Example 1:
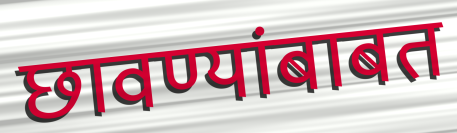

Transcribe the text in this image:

छावण्यांबाबत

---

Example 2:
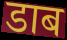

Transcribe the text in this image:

डाब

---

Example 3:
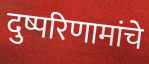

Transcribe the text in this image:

दुष्परिणामांचे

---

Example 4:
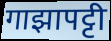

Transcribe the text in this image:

गाझापट्टी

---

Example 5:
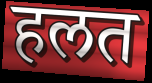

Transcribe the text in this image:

हलत